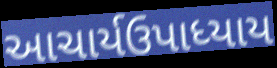
આચાર્યઉપાધ્યાય